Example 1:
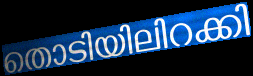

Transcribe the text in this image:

തൊടിയിലിറക്കി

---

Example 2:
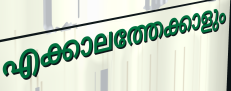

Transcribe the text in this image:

എക്കാലത്തേക്കാളും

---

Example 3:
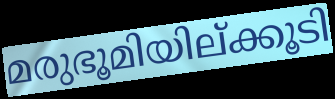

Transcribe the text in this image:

മരുഭൂമിയില്ക്കൂടി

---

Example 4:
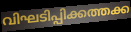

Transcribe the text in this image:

വിഘടിപ്പിക്കത്തക്ക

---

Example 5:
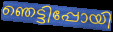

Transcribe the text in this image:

ഞെട്ടിപ്പോയി